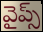
వైప్స్